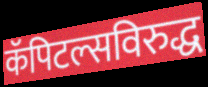
कॅपिटल्सविरुद्ध